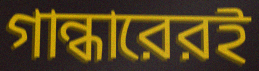
গান্ধারেরই